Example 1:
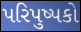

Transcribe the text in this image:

પરિપુષ્પકો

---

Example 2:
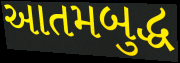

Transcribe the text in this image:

આતમબુદ્ધ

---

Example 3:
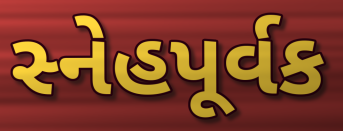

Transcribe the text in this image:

સ્નેહપૂર્વક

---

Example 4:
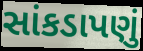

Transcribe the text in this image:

સાંકડાપણું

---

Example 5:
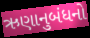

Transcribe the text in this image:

ઋણાનુબંધનો